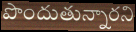
పొందుతున్నారని